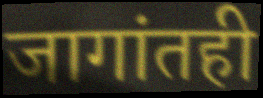
जागांतही